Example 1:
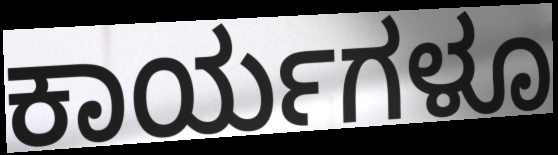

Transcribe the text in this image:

ಕಾರ್ಯಗಳೂ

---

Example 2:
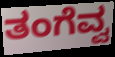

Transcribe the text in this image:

ತಂಗೆವ್ವ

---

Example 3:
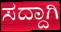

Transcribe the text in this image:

ಸದ್ದಾಗಿ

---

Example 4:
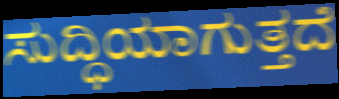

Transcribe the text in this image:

ಸುದ್ಧಿಯಾಗುತ್ತದೆ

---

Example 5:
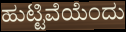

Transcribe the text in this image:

ಹುಟ್ಟಿವೆಯೆಂದು